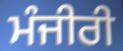
ਮੰਜੀਰੀ